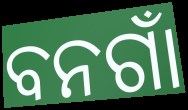
ବନଗାଁ